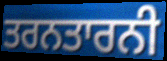
ਤਰਨਤਾਰਨੀ